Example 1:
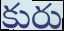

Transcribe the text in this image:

కురు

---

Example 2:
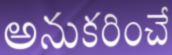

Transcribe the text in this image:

అనుకరించే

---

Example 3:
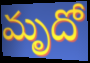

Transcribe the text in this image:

మృదో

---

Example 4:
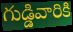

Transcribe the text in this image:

గుడ్డివారికి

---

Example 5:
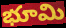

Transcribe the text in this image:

భూమి